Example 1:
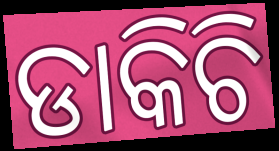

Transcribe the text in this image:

ଡାକିଚି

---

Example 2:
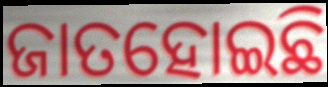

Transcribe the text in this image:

ଜାତହୋଇଛି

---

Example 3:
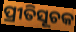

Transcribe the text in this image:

ପ୍ରୀତିସୂଚକ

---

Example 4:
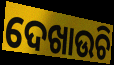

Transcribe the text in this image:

ଦେଖାଉଚି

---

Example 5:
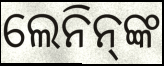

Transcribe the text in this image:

ଲେନିନ୍‌ଙ୍କ